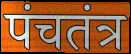
पंचतंत्र